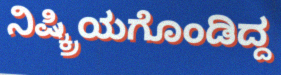
ನಿಷ್ಕ್ರಿಯಗೊಂಡಿದ್ದ